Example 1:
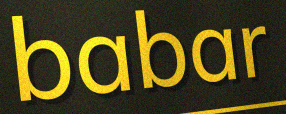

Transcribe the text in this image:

babar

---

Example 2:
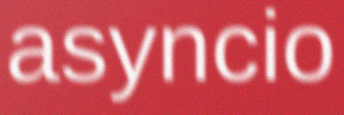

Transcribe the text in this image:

asyncio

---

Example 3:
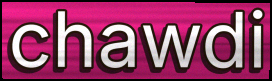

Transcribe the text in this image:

chawdi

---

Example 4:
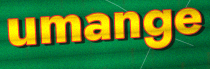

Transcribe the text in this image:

umange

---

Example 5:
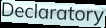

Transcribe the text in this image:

Declaratory